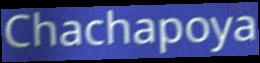
Chachapoya